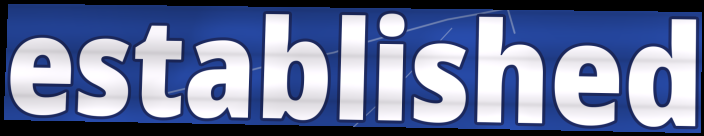
established